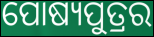
ପୋଷ୍ୟପୁତ୍ରର